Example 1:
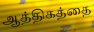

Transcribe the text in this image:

ஆத்திகத்தை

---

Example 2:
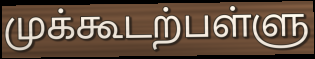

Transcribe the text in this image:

முக்கூடற்பள்ளு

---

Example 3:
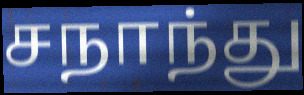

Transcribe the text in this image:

சநாந்து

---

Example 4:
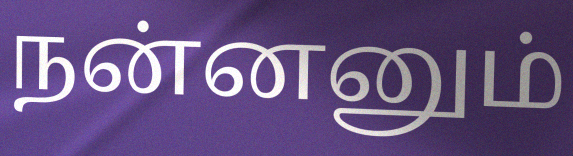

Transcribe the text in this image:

நன்னனும்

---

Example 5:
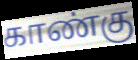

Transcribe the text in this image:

காண்கு